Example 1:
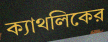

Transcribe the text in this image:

ক্যাথলিকের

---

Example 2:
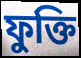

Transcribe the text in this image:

ফুক্তি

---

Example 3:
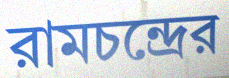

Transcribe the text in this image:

রামচন্দ্রের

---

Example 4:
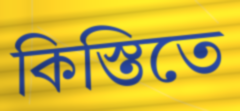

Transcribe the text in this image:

কিস্তিতে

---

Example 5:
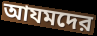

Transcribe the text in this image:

আযমদের